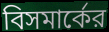
বিসমার্কের